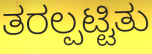
ತರಲ್ಪಟ್ಟಿತು